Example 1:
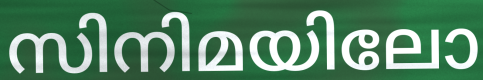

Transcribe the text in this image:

സിനിമയിലോ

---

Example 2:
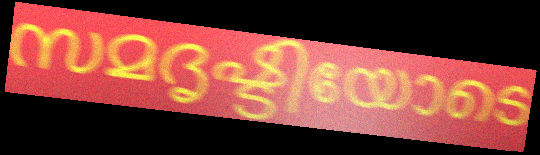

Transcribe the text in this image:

സമദൃഷ്ടിയോടെ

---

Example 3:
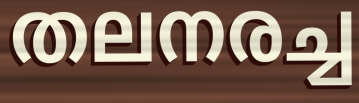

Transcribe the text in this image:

തലനരച്ച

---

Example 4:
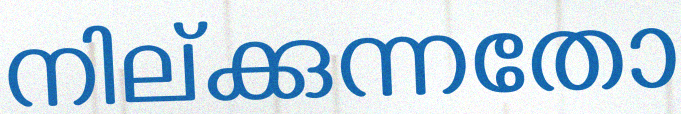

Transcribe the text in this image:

നില്ക്കുന്നതോ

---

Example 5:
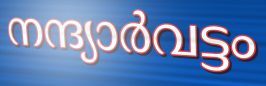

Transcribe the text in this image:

നന്ദ്യാർവട്ടം